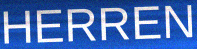
HERREN